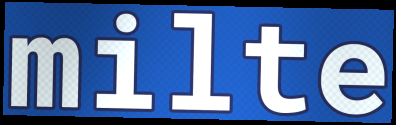
milte